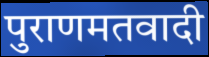
पुराणमतवादी